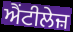
ਐਂਟੀਲੇਜ਼